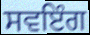
ਸਵਇੰਗ